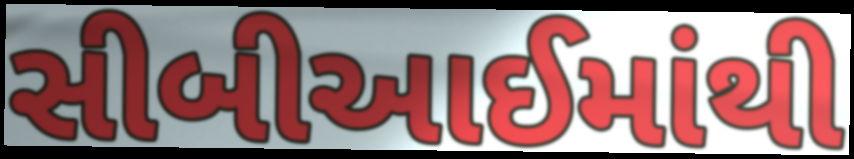
સીબીઆઈમાંથી